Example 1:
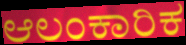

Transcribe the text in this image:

ಆಲಂಕಾರಿಕ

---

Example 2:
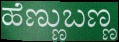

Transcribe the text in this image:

ಹೆಣ್ಣುಬಣ್ಣ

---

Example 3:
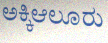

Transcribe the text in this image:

ಅಕ್ಕಿಆಲೂರು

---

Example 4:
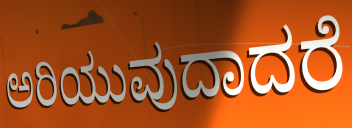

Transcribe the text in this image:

ಅರಿಯುವುದಾದರೆ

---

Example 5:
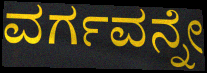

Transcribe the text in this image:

ವರ್ಗವನ್ನೇ